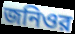
জনিওর